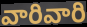
వారివారి